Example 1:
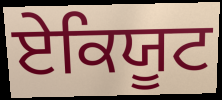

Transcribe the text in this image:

ਏਕਿਯੂਟ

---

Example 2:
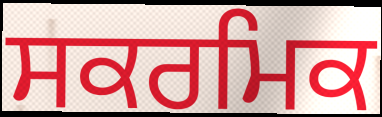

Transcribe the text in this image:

ਸਕਰਮਿਕ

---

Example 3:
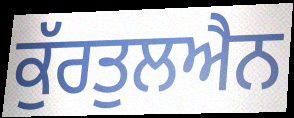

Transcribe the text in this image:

ਕੁੱਰਤੁਲਐਨ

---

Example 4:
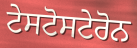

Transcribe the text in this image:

ਟੇਸਟੋਸਟੇਰੋਨ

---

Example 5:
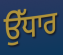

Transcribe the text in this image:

ਉੱਧਾਰ